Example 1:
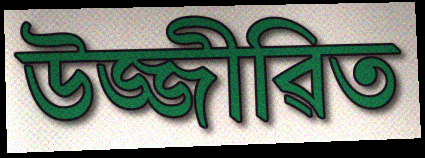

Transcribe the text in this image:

উজ্জীৱিত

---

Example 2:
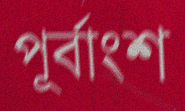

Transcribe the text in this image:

পূৰ্বাংশ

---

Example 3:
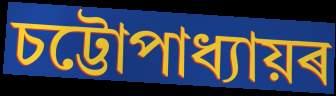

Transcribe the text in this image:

চট্টোপাধ্যায়ৰ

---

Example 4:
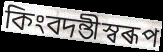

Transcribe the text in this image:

কিংবদন্তীস্বৰূপ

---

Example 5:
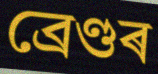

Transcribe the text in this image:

ব্ৰেণ্ডৰ